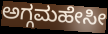
ಅಗ್ಗಮಹೇಸೀ